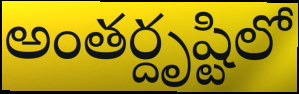
అంతర్దృష్టిలో